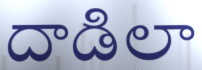
దాడిలా